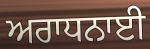
ਅਰਾਧਨਾਈ